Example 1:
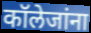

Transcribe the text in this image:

कॉलेजांना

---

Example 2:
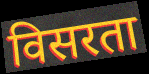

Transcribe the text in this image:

विसरता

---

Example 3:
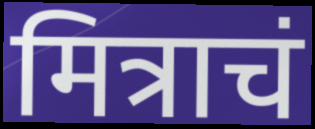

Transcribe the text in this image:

मित्राचं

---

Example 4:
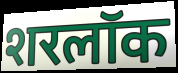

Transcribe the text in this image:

शरलॉक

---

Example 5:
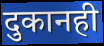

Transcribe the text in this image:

दुकानही